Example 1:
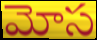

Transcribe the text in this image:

మోస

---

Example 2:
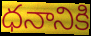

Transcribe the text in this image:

ధనానికి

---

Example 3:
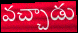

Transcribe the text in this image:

వచ్చాడు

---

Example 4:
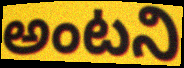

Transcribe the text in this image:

అంటని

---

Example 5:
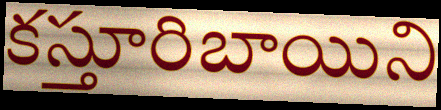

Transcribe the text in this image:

కస్తూరిబాయిని